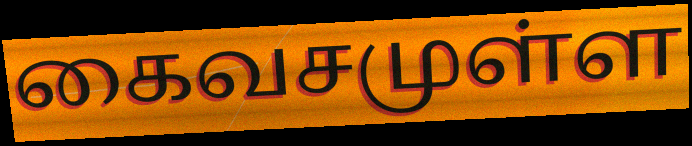
கைவசமுள்ள